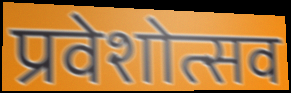
प्रवेशोत्सव